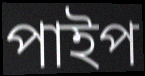
পাইপ